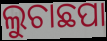
ଲୁଚାଛପା